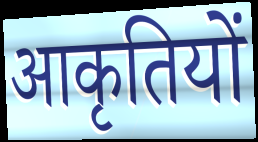
आकृतियों